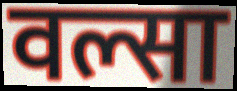
वल्सा